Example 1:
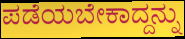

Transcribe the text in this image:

ಪಡೆಯಬೇಕಾದ್ದನ್ನು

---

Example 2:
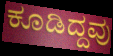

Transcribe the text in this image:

ಕೂಡಿದ್ದವು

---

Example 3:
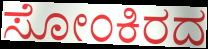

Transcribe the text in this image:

ಸೋಂಕಿರದ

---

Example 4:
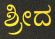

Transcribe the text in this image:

ಶ್ರೀದ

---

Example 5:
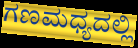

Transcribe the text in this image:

ಗಣಮಧ್ಯದಲ್ಲಿ